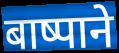
बाष्पाने